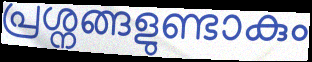
പ്രശ്നങ്ങളുണ്ടാകും